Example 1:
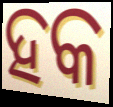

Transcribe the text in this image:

ହକ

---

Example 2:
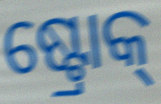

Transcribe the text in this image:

ଷ୍ଟ୍ରୋକ୍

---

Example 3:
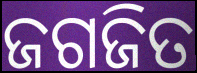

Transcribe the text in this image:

ଜଗଜିତ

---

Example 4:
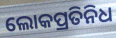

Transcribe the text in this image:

ଲୋକପ୍ରତିନିଧ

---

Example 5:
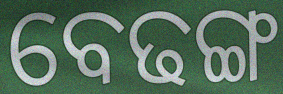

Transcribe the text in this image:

ବେଢଙ୍ଗ